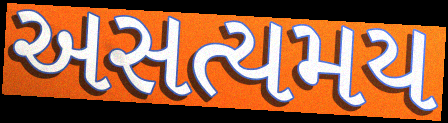
અસત્યમય